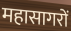
महासागरों